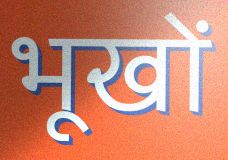
भूखों